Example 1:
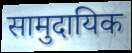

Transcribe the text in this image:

सामुदायिक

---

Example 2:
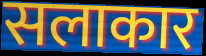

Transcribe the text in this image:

सलाकार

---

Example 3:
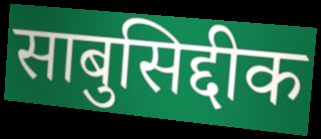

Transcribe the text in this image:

साबुसिद्दीक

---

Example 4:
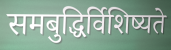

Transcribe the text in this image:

समबुद्धिर्विशिष्यते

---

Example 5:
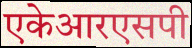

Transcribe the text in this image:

एकेआरएसपी